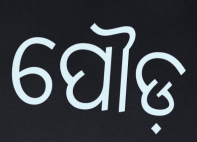
ପୌଡ଼